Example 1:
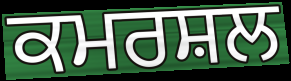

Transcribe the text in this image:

ਕਮਰਸ਼ਲ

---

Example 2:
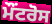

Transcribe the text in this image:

ਮੌਂਟਰੋਸ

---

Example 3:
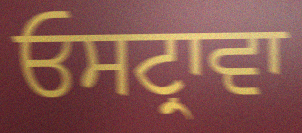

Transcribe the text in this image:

ਓਸਟ੍ਰਾਵਾ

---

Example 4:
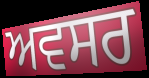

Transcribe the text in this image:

ਅਵਸਰ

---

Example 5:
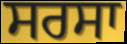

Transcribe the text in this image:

ਸਰਸਾ